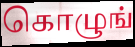
கொழுங்